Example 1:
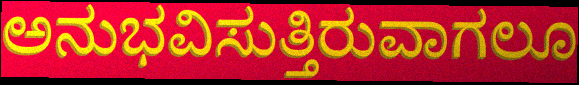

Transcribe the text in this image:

ಅನುಭವಿಸುತ್ತಿರುವಾಗಲೂ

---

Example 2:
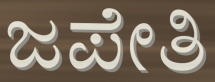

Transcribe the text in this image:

ಜಪೇತಿ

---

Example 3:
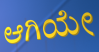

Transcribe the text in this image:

ಆಗಿಯೇ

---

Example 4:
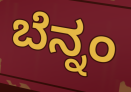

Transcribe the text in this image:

ಬೆನ್ನಂ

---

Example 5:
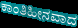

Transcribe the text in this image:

ಕಾಂತಿಹೀನವಾದ